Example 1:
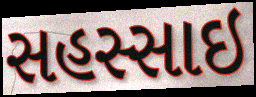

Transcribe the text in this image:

સહસ્સાઇ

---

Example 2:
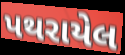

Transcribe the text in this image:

પથરાયેલ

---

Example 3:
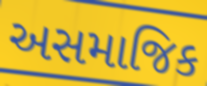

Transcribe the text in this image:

અસમાજિક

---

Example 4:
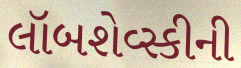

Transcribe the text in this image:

લૉબશેવ્સ્કીની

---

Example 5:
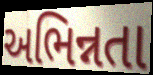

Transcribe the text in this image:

અભિન્નતા